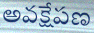
అవక్షేపణ